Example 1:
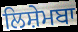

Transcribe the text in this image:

ਲਿਸ਼ੇਮਬਾ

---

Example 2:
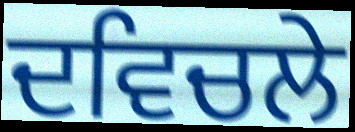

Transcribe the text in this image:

ਦਵਿਚਲੇ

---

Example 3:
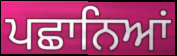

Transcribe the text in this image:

ਪਛਾਨਿਆਂ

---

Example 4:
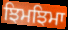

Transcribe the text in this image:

ਝਿਮਝਿਮਾ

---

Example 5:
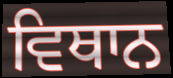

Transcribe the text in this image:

ਵਿਥਾਨ